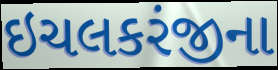
ઇચલકરંજીના